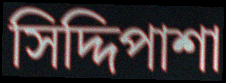
সিদ্দিপাশা